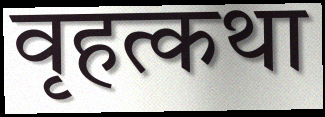
वृहत्कथा